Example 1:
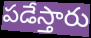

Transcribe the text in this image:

పడేస్తారు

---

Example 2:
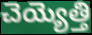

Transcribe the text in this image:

చెయ్యెత్తి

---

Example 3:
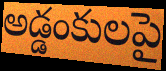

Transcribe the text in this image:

అడ్డంకులపై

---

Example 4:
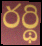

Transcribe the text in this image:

రర్థి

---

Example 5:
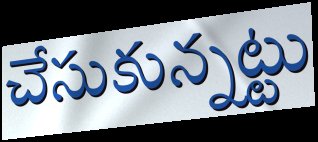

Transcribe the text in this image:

చేసుకున్నట్టు